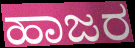
ಹಾಜರ